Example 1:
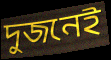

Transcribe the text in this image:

দুজনেই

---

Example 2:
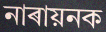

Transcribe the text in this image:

নাৰায়নক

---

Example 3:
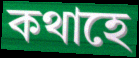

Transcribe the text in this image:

কথাহে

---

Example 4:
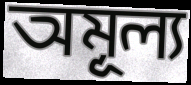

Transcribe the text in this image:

অমূল্য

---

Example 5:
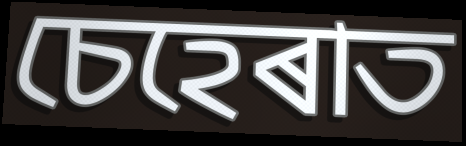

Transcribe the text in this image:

চেহেৰাত